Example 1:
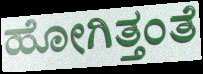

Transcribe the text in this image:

ಹೋಗಿತ್ತಂತೆ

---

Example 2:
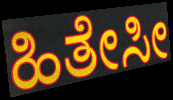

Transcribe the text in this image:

ಹಿತೇಸೀ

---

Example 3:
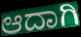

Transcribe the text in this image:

ಆದಾಗಿ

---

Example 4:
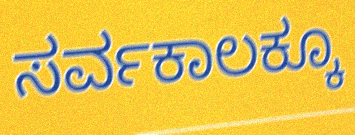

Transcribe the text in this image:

ಸರ್ವಕಾಲಕ್ಕೂ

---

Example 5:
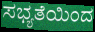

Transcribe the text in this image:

ಸಭ್ಯತೆಯಿಂದ